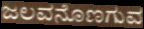
ಜಲವನೊಣಗುವ